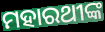
ମହାରଥୀଙ୍କ